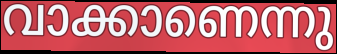
വാക്കാണെന്നു